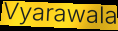
Vyarawala